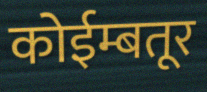
कोईम्बतूर